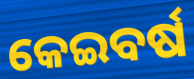
କେଇବର୍ଷ